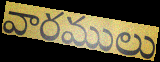
వారములు